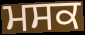
ਮਸਕ